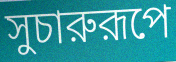
সুচারুরূপে